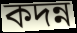
কদন্ন